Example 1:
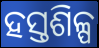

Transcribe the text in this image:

ହସ୍ତଶିଳ୍ପ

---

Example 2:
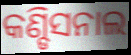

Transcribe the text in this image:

କଣ୍ଡିସନାଲ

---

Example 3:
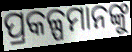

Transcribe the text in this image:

ପ୍ରକଳ୍ପମାନଙ୍କୁ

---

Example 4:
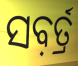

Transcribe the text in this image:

ସବ଼ର୍ତ୍ର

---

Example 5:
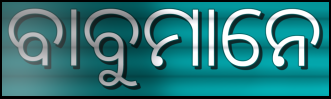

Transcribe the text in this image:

ବାବୁମାନେ